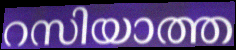
റസിയാത്ത